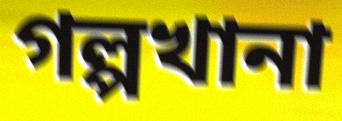
গল্পখানা